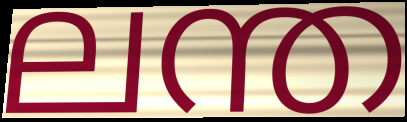
ലന്ത